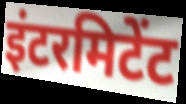
इंटरमिटेंट